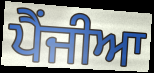
ਪੈਂਜੀਆ